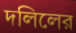
দলিলের